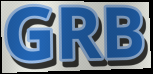
GRB